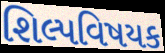
શિલ્પવિષયક